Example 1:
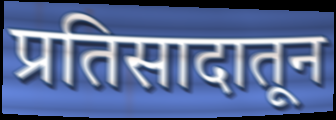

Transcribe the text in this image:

प्रतिसादातून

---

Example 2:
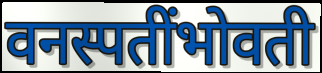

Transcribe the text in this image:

वनस्पतींभोवती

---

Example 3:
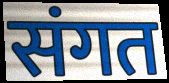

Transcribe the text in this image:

संगत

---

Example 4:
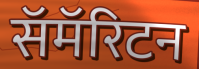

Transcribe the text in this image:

सॅमॅरिटन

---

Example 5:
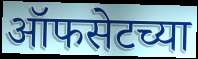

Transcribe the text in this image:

ऑफसेटच्या